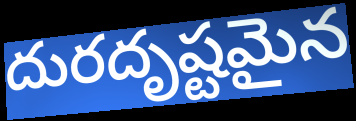
దురదృష్టమైన